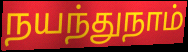
நயந்துநாம்